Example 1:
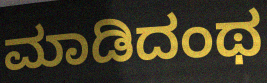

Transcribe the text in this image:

ಮಾಡಿದಂಥ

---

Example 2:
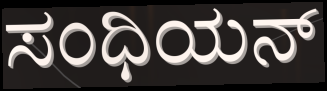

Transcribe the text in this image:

ಸಂಧಿಯನ್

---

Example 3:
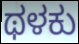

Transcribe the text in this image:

ಥಳಕು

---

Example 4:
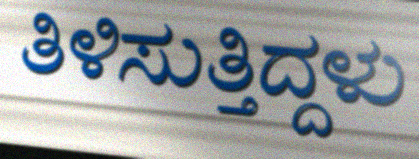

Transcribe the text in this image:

ತಿಳಿಸುತ್ತಿದ್ದಳು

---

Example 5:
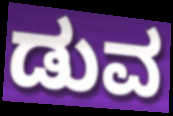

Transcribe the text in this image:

ಡುವ